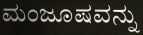
ಮಂಜೂಷವನ್ನು